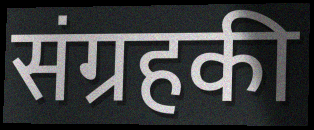
संग्रहकी